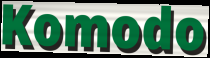
Komodo